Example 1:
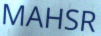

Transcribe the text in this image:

MAHSR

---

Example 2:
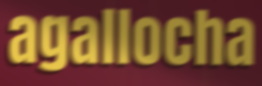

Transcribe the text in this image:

agallocha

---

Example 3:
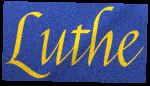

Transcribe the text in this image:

Luthe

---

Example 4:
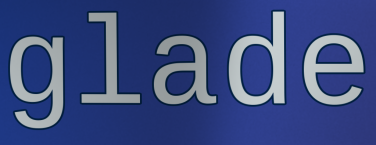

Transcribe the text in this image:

glade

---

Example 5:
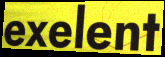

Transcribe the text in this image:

exelent